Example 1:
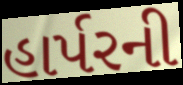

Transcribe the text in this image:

હાર્પરની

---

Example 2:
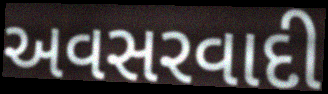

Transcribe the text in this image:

અવસરવાદી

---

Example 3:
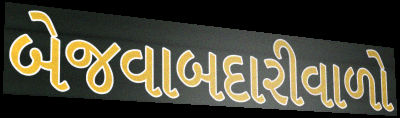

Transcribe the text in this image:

બેજવાબદારીવાળો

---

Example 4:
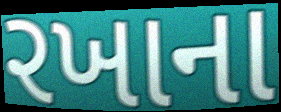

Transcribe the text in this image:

રખાના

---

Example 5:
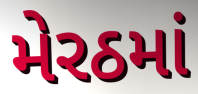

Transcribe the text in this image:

મેરઠમાં